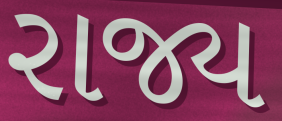
રાજ્ય